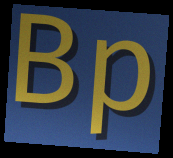
Bp